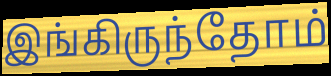
இங்கிருந்தோம்